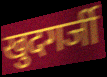
खुदगर्जी